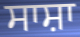
ਸਾਸ਼ਾ